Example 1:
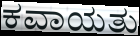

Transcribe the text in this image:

ಕವಾಯತು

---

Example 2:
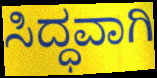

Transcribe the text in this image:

ಸಿದ್ಧವಾಗಿ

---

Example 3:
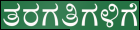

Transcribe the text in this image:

ತರಗತಿಗಳಿಗೆ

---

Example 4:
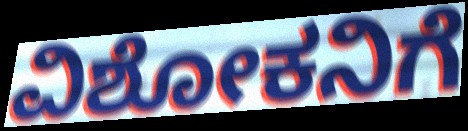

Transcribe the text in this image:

ವಿಶೋಕನಿಗೆ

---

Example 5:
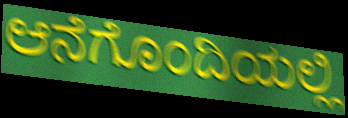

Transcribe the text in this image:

ಆನೆಗೊಂದಿಯಲ್ಲಿ